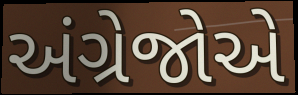
અંગ્રેજોએ